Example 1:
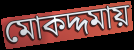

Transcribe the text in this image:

মোকদ্দমায়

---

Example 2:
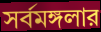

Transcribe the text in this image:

সর্বমঙ্গলার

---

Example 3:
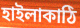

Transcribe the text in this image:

হাইলাকাঠি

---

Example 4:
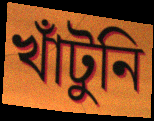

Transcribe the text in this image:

খাঁটুনি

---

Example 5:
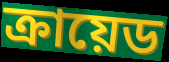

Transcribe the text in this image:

ক্রায়েড